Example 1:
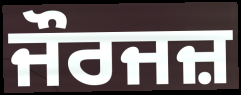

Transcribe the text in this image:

ਜੌਰਜਜ਼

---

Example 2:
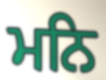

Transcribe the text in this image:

ਮਨਿ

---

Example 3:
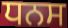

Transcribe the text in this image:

ਧਨਸ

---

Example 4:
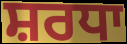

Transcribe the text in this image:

ਸ਼ਰਧਾ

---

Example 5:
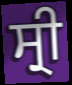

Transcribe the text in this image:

ਸ੍ਰੀ